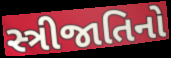
સ્ત્રીજાતિનો